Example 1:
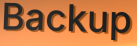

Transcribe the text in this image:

Backup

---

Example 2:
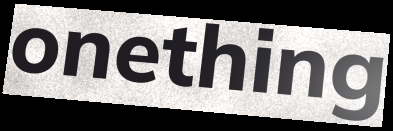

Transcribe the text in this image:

onething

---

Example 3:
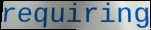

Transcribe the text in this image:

requiring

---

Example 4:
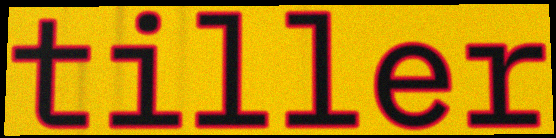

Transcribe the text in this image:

tiller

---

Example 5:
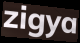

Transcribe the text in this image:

zigya